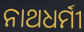
ନାଥଧର୍ମୀ